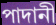
পাদানী